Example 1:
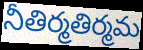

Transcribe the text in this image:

నీతిర్మతిర్మమ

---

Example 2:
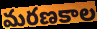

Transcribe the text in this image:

మరణకాల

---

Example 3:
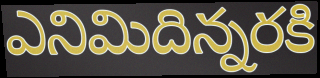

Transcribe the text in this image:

ఎనిమిదిన్నరకి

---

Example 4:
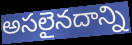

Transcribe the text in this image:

అసలైనదాన్ని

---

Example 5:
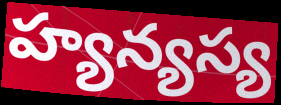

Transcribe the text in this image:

హ్యన్యస్య